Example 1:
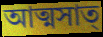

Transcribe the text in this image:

আত্মসাত্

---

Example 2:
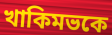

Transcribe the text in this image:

খাকিমভকে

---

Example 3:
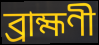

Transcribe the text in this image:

ব্রাহ্মণী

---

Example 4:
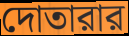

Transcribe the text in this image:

দোতারার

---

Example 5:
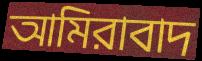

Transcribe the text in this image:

আমিরাবাদ